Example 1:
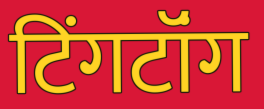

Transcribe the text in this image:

टिंगटॉंग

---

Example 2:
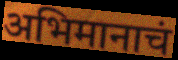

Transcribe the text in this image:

अभिमानाचं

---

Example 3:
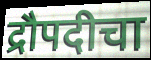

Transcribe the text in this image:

द्रौपदीचा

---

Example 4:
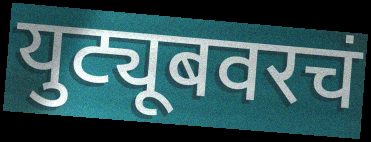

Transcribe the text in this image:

युट्यूबवरचं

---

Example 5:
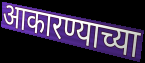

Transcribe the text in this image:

आकारण्याच्या